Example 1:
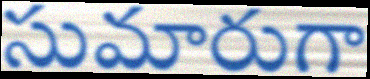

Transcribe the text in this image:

సుమారుగా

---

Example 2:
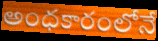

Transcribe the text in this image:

అంధకారంలోనే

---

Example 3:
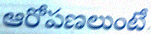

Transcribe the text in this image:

ఆరోపణలుంటే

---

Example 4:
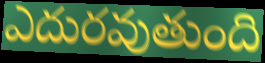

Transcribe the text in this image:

ఎదురవుతుంది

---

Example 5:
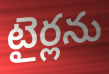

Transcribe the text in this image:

టైర్లను